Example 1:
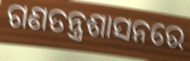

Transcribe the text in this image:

ଗଣତନ୍ତ୍ରଶାସନରେ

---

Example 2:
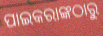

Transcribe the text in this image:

ପାଇକରାଙ୍କଠାରୁ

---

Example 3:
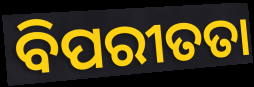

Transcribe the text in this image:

ବିପରୀତତା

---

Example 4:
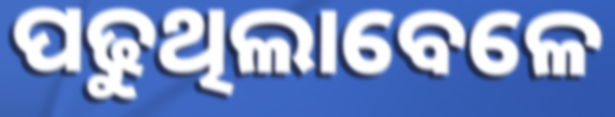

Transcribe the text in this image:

ପଢୁଥିଲାବେଳେ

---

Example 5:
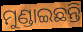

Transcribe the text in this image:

ମୁଣ୍ଡାଇଛନ୍ତି